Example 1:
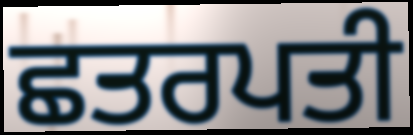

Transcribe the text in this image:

ਛਤਰਪਤੀ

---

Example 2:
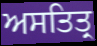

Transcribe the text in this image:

ਅਸਤਿਤ੍ਰ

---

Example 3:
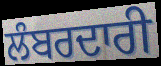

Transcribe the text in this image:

ਲੰਬਰਦਾਰੀ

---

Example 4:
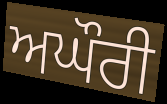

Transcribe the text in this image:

ਅਘੌਰੀ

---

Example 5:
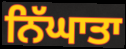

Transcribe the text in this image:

ਨਿੱਘਾਤਾ